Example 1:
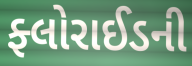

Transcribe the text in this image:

ફ્લોરાઈડની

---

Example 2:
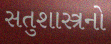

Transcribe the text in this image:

સતુશાસ્ત્રનો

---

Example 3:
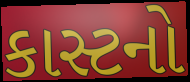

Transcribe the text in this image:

કાસ્ટનો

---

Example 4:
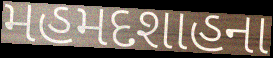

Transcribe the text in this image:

મહમદશાહના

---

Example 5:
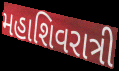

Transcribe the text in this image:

મહાશિવરાત્રી